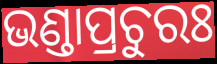
ଭଣ୍ଡାପ୍ରଚୁରଃ